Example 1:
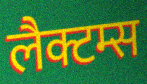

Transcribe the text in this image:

लैक्टम्स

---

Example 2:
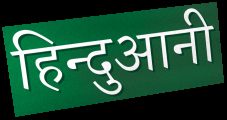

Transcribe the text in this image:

हिन्दुआनी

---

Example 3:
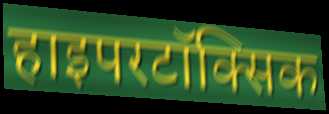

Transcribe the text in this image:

हाइपरटॉक्सिक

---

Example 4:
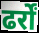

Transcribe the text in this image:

ढर्रों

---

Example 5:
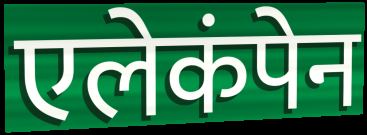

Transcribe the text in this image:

एलेकंपेन